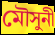
মৌসুনী